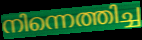
നിന്നെത്തിച്ച